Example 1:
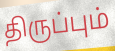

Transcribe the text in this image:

திருப்பும்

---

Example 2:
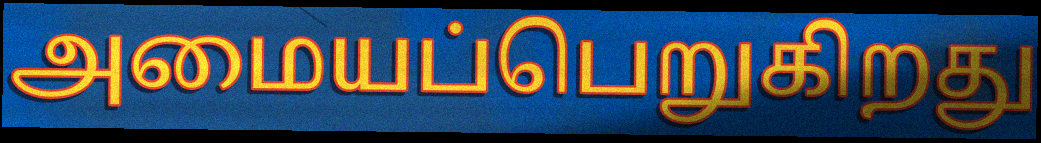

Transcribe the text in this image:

அமையப்பெறுகிறது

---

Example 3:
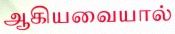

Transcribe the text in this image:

ஆகியவையால்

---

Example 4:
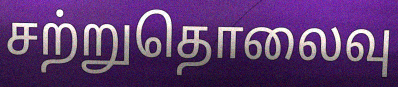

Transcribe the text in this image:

சற்றுதொலைவு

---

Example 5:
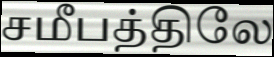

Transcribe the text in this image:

சமீபத்திலே